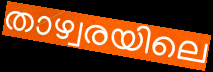
താഴ്വരയിലെ